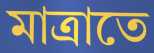
মাত্ৰাতে